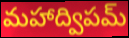
మహాద్విపమ్